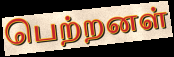
பெற்றனள்